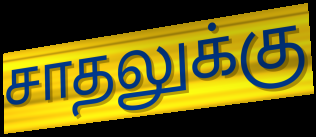
சாதலுக்கு